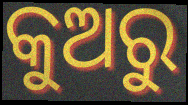
କୁଅରୁ